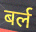
बर्ल